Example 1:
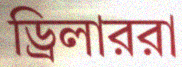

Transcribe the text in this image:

ড্রিলাররা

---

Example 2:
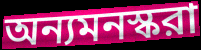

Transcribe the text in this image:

অন্যমনস্করা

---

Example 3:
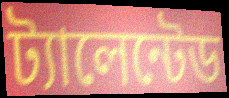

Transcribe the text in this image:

ট্যালেন্টেড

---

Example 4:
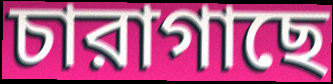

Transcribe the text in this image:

চারাগাছে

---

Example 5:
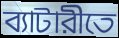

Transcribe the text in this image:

ব্যাটারীতে